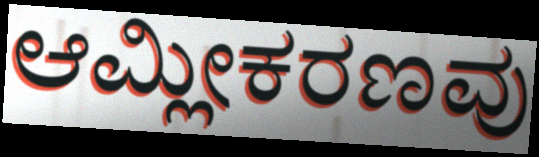
ಆಮ್ಲೀಕರಣವು